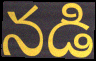
నడి